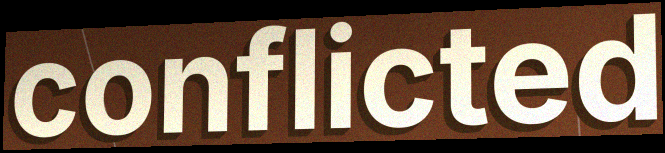
conflicted